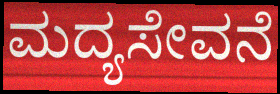
ಮದ್ಯಸೇವನೆ